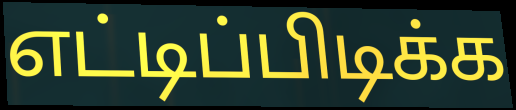
எட்டிப்பிடிக்க